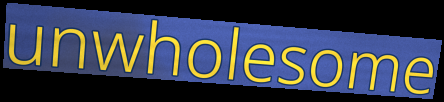
unwholesome